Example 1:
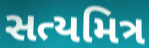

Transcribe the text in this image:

સત્યમિત્ર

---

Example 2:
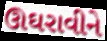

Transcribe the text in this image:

ઊઘરાવીને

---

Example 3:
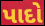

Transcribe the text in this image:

પાદો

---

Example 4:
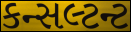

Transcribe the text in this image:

કન્સલ્ટન્ટ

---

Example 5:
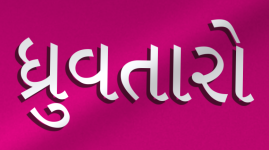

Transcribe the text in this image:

ધ્રુવતારો